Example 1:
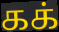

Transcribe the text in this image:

கக்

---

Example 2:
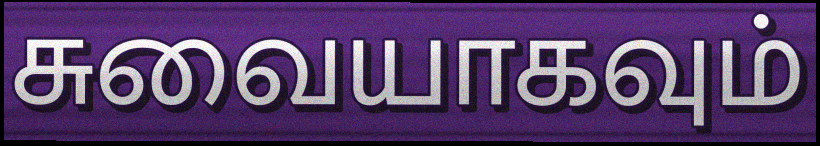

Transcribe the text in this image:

சுவையாகவும்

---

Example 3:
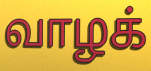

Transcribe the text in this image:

வாழக்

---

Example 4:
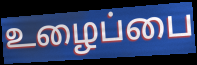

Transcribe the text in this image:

உழைப்பை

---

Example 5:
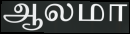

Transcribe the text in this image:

ஆலமா